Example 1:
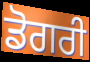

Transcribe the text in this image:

ਡੋਗਰੀ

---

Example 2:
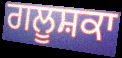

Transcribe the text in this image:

ਗਲੂਸ਼ਕਾ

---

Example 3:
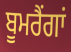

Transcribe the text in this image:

ਬੂਮਰੈਂਗਾਂ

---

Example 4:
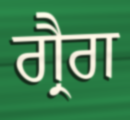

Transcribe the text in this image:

ਗ੍ਰੈਗ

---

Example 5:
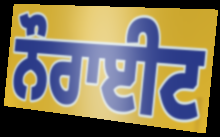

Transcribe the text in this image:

ਨੌਰਾਈਟ